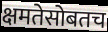
क्षमतेसोबतच